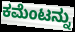
ಕಮೆಂಟನ್ನು